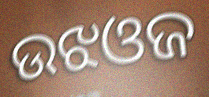
ଉଝଓଜ